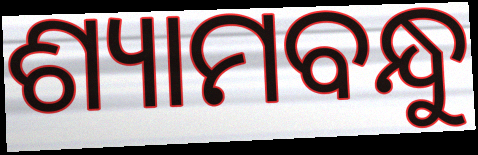
ଶ୍ୟାମବନ୍ଧୁ